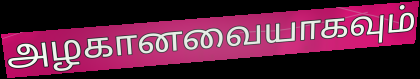
அழகானவையாகவும்